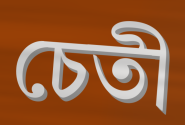
চেতী